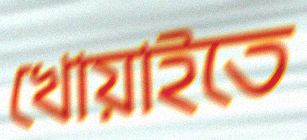
খোয়াইতে